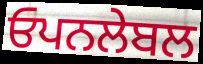
ਓਪਨਲੇਬਲ